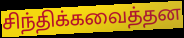
சிந்திக்கவைத்தன